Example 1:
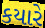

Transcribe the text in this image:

કયારે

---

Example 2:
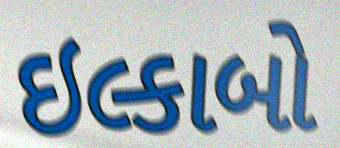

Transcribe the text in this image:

ઇલ્કાબો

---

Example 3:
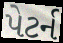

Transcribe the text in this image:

પેટર્ન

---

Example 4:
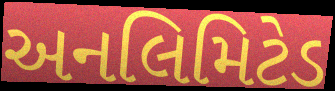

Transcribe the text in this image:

અનલિમિટેડ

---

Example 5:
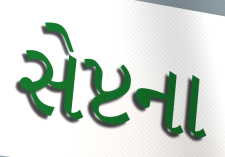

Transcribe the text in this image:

સેપ્ટના